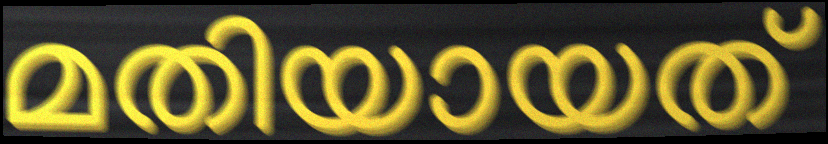
മതിയായത്